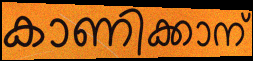
കാണിക്കാന്